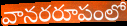
వానరరూపంలో